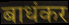
बाधंकर